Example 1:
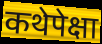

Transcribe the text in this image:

कथेपेक्षा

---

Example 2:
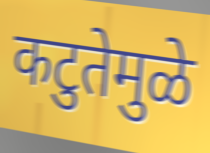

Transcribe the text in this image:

कटुतेमुळे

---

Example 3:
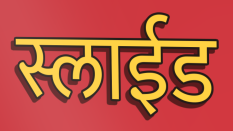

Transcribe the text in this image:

स्लाईड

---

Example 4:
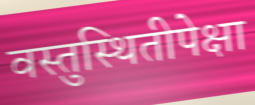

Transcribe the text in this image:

वस्तुस्थितीपेक्षा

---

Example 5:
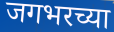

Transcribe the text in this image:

जगभरच्या